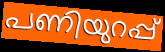
പണിയുറപ്പ്